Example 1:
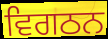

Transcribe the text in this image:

ਵਿਗਠਨ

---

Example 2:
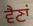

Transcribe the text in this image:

ਵੈਣਾਂ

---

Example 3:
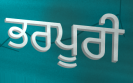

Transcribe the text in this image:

ਭਰਪੂਰੀ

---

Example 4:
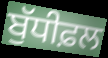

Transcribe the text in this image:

ਬੁੱਧੀਫ਼ਲ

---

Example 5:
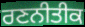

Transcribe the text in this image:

ਰਣਨੀਤੀਕ